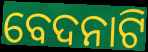
ବେଦନାଟି